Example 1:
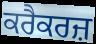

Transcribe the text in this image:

ਕਰੈਕਰਜ਼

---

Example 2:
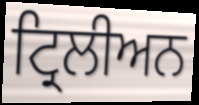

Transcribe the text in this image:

ਟ੍ਰਿਲੀਅਨ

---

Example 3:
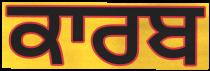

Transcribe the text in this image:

ਕਾਰਬ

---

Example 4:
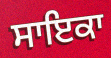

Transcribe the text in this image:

ਸਾਇਕਾ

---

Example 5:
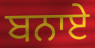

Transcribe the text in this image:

ਬਨਾਏ